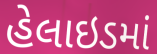
હેલાઇડમાં